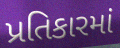
પ્રતિકારમાં